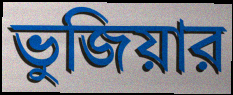
ভুজিয়ার